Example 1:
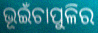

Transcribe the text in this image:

ଭୂଇଁଚାପୁଳିର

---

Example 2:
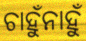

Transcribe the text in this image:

ଚାହୁଁନାହୁଁ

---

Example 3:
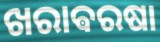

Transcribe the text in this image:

ଖରାଵରଷା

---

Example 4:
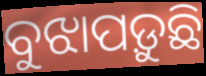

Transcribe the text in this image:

ବୁଝାପଡ଼ୁଛି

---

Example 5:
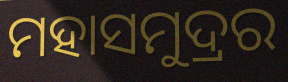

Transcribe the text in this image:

ମହାସମୁଦ୍ରର